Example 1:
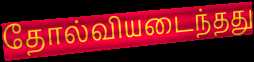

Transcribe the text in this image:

தோல்வியடைந்தது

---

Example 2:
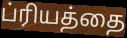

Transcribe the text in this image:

ப்ரியத்தை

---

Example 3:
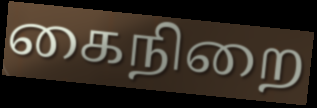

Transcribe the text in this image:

கைநிறை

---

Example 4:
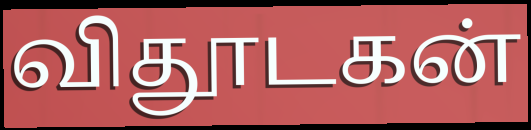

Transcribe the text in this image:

விதூடகன்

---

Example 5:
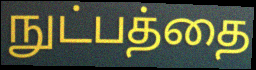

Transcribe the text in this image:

நுட்பத்தை